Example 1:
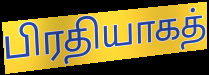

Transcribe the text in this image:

பிரதியாகத்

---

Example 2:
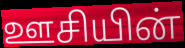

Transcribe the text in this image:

ஊசியின்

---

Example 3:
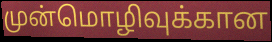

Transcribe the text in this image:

முன்மொழிவுக்கான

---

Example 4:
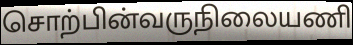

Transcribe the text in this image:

சொற்பின்வருநிலையணி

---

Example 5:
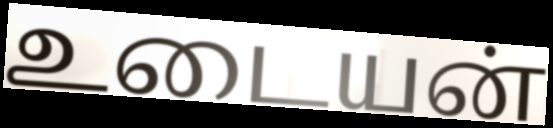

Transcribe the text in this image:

உடையன்